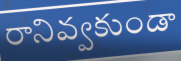
రానివ్వకుండా